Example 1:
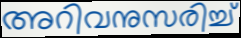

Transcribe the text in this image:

അറിവനുസരിച്ച്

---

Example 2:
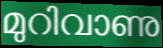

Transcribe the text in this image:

മുറിവാണു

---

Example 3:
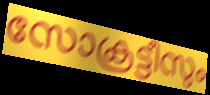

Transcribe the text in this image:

സോക്രട്ടീസും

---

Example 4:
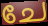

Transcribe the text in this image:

ചേ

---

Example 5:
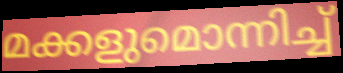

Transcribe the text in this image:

മക്കളുമൊന്നിച്ച്